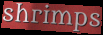
shrimps